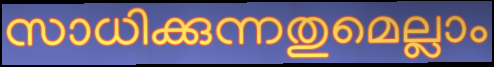
സാധിക്കുന്നതുമെല്ലാം